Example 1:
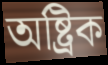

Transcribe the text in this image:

অষ্ট্রিক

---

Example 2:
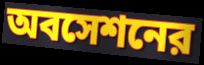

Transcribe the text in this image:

অবসেশনের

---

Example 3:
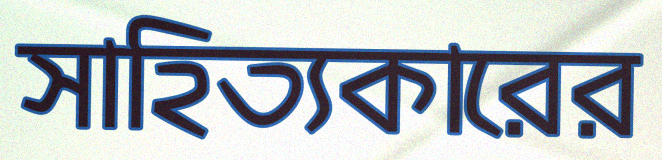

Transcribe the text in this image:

সাহিত্যকারের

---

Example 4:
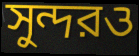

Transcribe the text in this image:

সুন্দরও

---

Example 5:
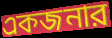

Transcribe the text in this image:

একজনার